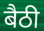
बैठी